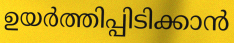
ഉയർത്തിപ്പിടിക്കാൻ